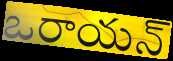
ఒరాయన్